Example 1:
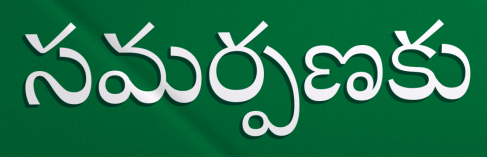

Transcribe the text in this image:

సమర్పణకు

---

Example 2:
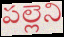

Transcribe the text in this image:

పల్లెని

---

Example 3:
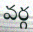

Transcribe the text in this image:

వర్గ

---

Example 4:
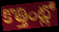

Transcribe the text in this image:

కొత్తింట్లో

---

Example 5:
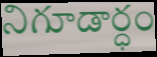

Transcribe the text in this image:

నిగూడార్ధం